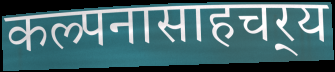
कल्पनासाहचर्य